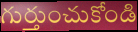
గుర్తుంచుకోండి